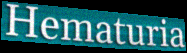
Hematuria